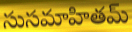
సుసమాహితమ్